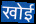
खोई